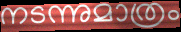
നടന്നുമാത്രം